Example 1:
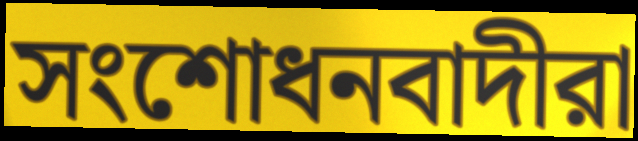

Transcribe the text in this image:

সংশোধনবাদীরা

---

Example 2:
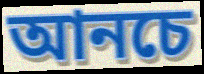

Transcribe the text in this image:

আনচে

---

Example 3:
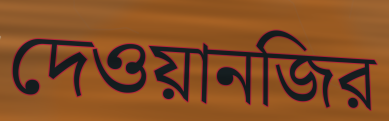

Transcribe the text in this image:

দেওয়ানজির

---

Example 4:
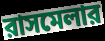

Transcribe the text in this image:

রাসমেলার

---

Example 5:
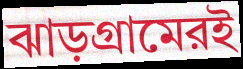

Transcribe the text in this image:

ঝাড়গ্রামেরই